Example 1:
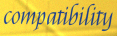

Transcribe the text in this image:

compatibility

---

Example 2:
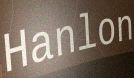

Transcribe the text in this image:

Hanlon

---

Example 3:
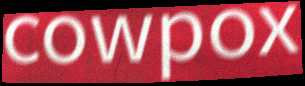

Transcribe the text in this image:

cowpox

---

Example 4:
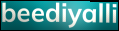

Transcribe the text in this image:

beediyalli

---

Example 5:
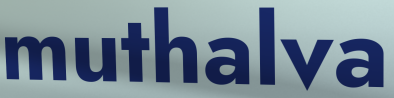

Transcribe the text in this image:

muthalva